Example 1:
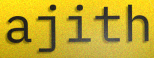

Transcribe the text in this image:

ajith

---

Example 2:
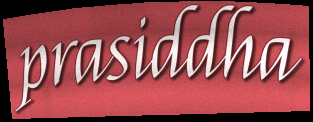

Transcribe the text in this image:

prasiddha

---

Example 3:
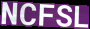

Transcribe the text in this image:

NCFSL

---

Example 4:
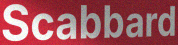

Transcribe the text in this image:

Scabbard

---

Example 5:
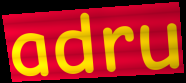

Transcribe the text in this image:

adru